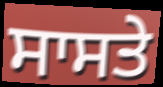
ਸਾਸਤੇ